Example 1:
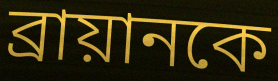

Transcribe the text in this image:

ব্রায়ানকে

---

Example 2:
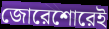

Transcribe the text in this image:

জোরেশোরেই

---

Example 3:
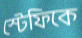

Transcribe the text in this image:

স্টেফিকে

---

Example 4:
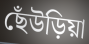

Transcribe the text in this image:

ছেঁউড়িয়া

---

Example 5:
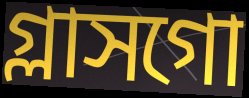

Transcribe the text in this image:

গ্লাসগো